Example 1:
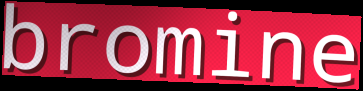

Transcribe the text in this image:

bromine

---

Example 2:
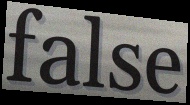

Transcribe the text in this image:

false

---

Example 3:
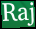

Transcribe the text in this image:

Raj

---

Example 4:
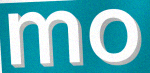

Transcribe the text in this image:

mo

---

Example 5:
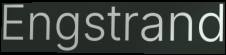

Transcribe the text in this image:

Engstrand